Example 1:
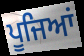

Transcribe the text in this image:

ਪੂਜਿਆਂ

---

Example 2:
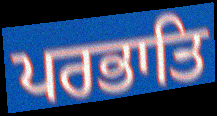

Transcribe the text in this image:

ਪਰਭਾਤਿ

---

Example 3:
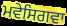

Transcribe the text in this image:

ਮਵੇਸਿਗਵਾ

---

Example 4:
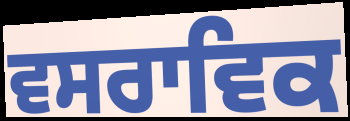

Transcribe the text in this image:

ਵਸਰਾਵਿਕ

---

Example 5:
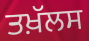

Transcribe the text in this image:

ਤਖ਼ੱਲਸ